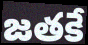
జతకే